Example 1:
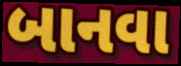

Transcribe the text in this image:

બાનવા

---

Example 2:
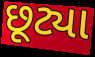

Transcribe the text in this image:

છૂટ્યા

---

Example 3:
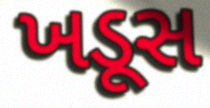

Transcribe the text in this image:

ખડૂસ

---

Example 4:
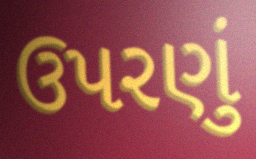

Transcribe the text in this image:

ઉપરણું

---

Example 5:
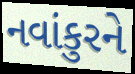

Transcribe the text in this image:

નવાંકુરને